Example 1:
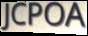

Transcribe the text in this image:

JCPOA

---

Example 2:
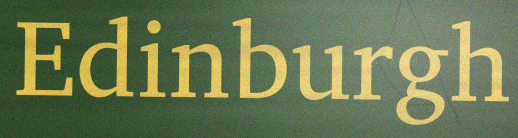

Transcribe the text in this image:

Edinburgh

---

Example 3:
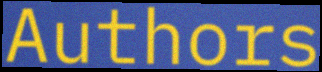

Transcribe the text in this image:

Authors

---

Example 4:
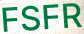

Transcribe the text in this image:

FSFR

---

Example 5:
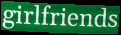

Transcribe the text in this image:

girlfriends